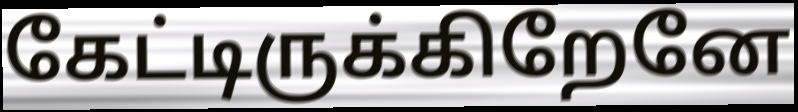
கேட்டிருக்கிறேனே